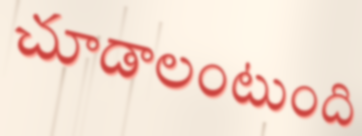
చూడాలంటుంది